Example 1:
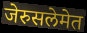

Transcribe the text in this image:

जेरुसलेमेत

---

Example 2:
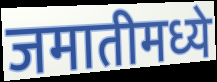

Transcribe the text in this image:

जमातीमध्ये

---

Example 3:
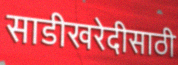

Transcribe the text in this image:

साडीखरेदीसाठी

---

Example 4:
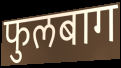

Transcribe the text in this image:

फुलबाग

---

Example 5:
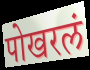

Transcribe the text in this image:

पोखरलं